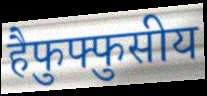
हैफुफ्फुसीय